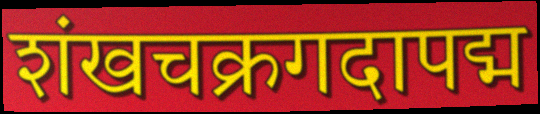
शंखचक्रगदापद्म